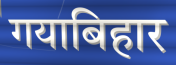
गयाबिहार